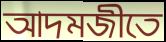
আদমজীতে